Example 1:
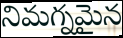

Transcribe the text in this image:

నిమగ్నమైన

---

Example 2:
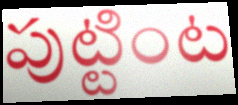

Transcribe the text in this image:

పుట్టింట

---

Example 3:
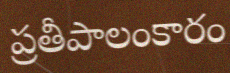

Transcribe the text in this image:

ప్రతీపాలంకారం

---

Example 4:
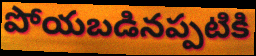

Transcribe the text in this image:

పోయబడినప్పటికి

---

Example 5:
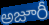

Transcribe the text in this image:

అజూరీ